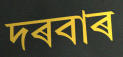
দৰবাৰ